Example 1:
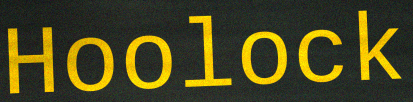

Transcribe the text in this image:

Hoolock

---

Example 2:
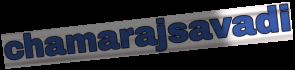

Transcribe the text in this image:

chamarajsavadi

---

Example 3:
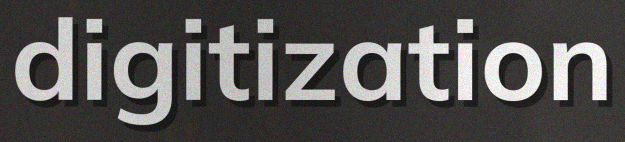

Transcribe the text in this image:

digitization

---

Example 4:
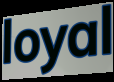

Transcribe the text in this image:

loyal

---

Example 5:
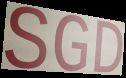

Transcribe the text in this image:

SGD